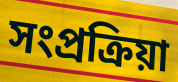
সংপ্ৰক্ৰিয়া